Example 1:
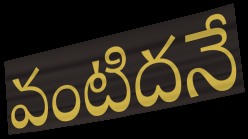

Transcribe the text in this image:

వంటిదనే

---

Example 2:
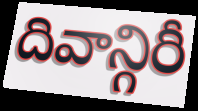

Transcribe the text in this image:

దివాన్గిరీ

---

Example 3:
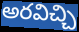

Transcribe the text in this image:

అరవిచ్చి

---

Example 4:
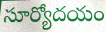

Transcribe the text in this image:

సూర్యోదయం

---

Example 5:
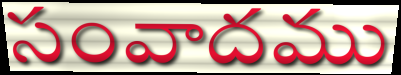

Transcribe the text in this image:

సంవాదము